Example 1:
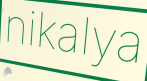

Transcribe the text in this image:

nikalya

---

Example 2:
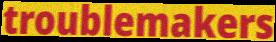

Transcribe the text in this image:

troublemakers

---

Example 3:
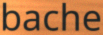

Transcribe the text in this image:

bache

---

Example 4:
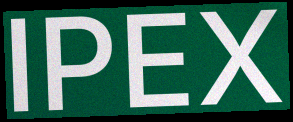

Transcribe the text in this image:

IPEX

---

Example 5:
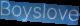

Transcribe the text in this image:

Boyslove